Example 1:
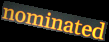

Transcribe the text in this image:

nominated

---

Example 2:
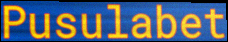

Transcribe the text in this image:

Pusulabet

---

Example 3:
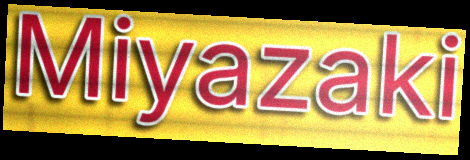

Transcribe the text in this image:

Miyazaki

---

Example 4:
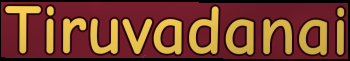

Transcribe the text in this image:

Tiruvadanai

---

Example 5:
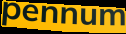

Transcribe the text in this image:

pennum